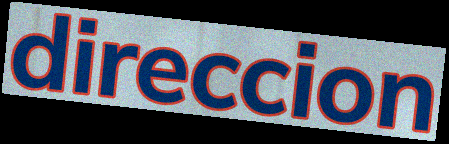
direccion